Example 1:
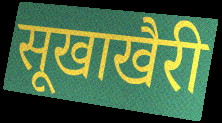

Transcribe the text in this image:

सूखाखैरी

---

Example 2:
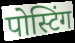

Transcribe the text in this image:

पोस्टिंग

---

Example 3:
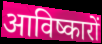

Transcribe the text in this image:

आविष्कारों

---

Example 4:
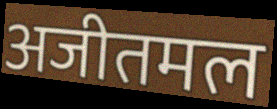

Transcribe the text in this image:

अजीतमल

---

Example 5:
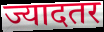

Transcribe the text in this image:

ज्यादतर